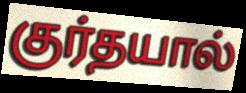
குர்தயால்